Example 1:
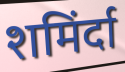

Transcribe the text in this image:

शमिंर्दा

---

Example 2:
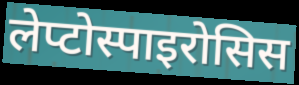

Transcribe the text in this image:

लेप्टोस्पाइरोसिस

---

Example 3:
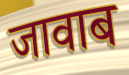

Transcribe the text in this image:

जावाब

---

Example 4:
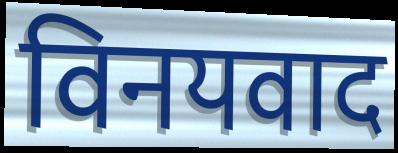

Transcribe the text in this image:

विनयवाद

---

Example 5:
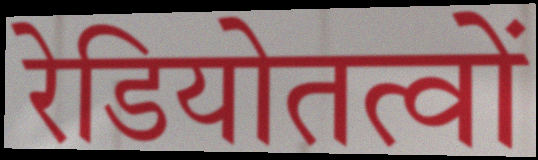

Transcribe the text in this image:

रेडियोतत्वों